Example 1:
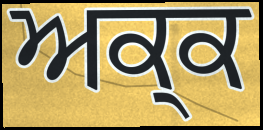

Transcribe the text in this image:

ਅਕ੍ਕ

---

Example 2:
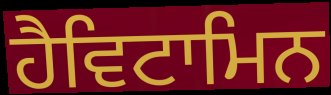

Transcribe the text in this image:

ਹੈਵਿਟਾਮਿਨ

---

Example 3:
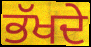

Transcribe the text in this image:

ਭੱਖਦੇ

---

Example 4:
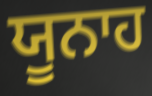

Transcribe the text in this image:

ਯੂਨਾਹ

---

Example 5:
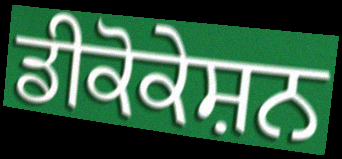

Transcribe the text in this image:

ਡੀਕੋਕੇਸ਼ਨ